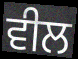
ਵੀਲ